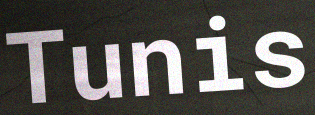
Tunis